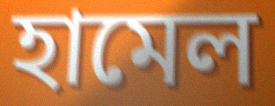
হামেল